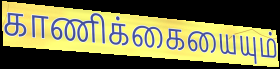
காணிக்கையையும்